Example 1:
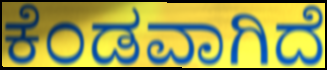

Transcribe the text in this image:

ಕೆಂಡವಾಗಿದೆ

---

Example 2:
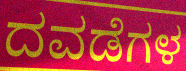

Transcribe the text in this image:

ದವಡೆಗಳ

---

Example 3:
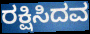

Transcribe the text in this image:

ರಕ್ಷಿಸಿದವ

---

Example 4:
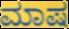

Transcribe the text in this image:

ಮಾಷ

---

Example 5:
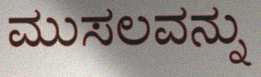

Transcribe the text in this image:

ಮುಸಲವನ್ನು